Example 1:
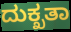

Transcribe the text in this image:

ದುಕ್ಖತಾ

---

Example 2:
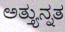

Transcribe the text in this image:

ಅತ್ತ್ಯುನ್ನತ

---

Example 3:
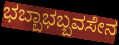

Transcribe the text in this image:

ಭಬ್ಬಾಭಬ್ಬವಸೇನ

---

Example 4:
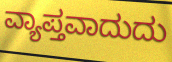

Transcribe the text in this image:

ವ್ಯಾಪ್ತವಾದುದು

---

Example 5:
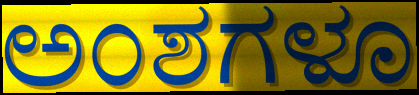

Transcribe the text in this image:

ಅಂಶಗಳೂ